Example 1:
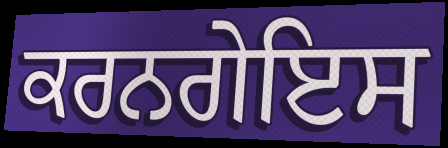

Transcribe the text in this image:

ਕਰਨਗੇਇਸ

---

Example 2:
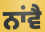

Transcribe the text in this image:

ਨਾਂਵੈ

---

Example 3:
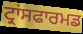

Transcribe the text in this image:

ਟ੍ਰਾਂਸਫਾਰਮਡ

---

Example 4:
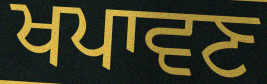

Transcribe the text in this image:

ਖਪਾਵਣ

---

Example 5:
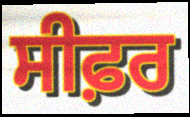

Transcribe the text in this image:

ਸੀਫ਼ਰ